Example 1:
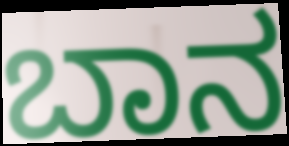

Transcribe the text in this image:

ಬಾನ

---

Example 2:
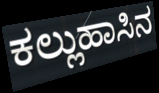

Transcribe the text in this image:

ಕಲ್ಲುಹಾಸಿನ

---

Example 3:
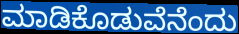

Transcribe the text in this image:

ಮಾಡಿಕೊಡುವೆನೆಂದು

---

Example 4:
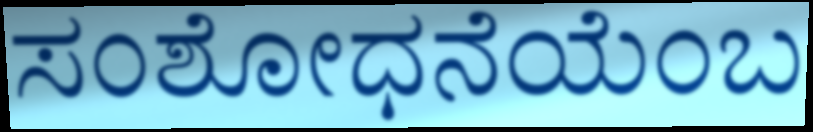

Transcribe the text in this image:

ಸಂಶೋಧನೆಯೆಂಬ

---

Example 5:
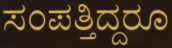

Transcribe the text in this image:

ಸಂಪತ್ತಿದ್ದರೂ